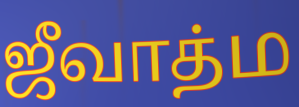
ஜீவாத்ம